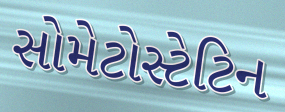
સોમેટોસ્ટેટિન